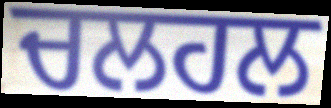
ਚਲਹਲ